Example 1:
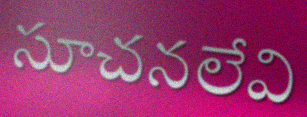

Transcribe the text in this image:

సూచనలేవి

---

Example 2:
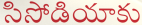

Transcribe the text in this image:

సిసోడియాకు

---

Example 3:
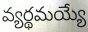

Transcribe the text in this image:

వ్యర్థమయ్యే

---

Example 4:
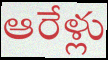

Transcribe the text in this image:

ఆరేళ్లు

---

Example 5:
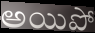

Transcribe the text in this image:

అయిపో